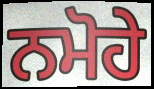
ਨਮੋਹੇ